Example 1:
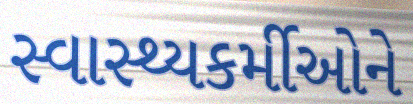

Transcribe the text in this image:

સ્વાસ્થ્યકર્મીઓને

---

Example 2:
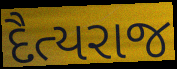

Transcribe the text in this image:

દૈત્યરાજ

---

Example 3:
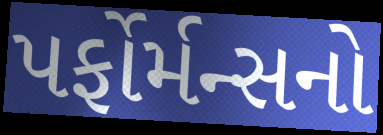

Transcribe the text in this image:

પર્ફોર્મન્સનો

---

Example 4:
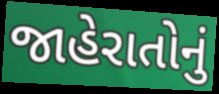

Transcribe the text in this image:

જાહેરાતોનું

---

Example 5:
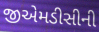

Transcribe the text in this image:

જીએમડીસીની